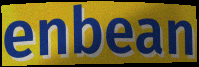
enbean